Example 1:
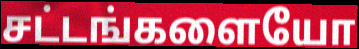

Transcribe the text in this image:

சட்டங்களையோ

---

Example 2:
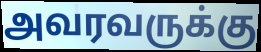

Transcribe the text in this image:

அவரவருக்கு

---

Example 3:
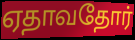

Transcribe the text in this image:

ஏதாவதோர்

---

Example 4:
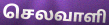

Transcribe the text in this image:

செலவாளி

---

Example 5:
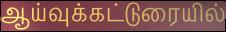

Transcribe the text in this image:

ஆய்வுக்கட்டுரையில்